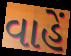
વાહેં